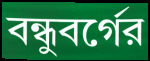
বন্ধুবর্গের